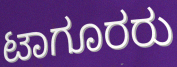
ಟಾಗೂರರು